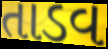
તાડવ